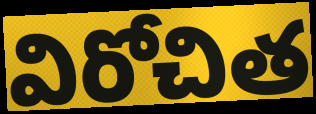
విరోచిత